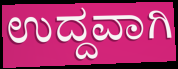
ಉದ್ದವಾಗಿ